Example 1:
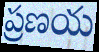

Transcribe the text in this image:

ప్రణయ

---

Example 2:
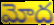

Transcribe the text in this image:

మోద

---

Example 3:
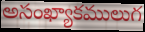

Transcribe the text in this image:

అసంఖ్యాకములుగ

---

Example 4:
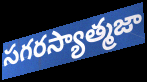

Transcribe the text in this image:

సగరస్యాత్మజా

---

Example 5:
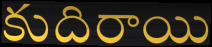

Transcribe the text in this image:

కుదిరాయి